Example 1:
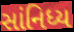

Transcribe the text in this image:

સાંનિધ્ય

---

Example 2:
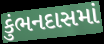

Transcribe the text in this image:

કુંભનદાસમાં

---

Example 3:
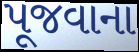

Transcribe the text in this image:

પૂજવાના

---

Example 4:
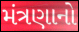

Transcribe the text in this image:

મંત્રણાનો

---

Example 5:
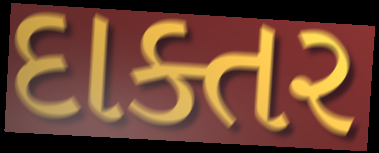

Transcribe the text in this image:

દાક્તર